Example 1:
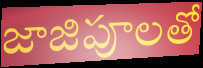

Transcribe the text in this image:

జాజిపూలతో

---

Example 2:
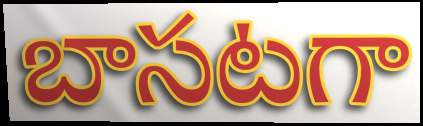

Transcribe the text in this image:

బాసటగా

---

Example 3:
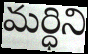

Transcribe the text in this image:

మర్ధిని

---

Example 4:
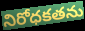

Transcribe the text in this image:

నిరోధకతను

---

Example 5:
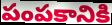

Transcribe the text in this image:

పంపకానికి